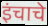
इंचाचे